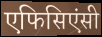
एफिसिएंसी